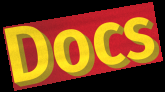
Docs